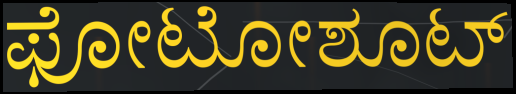
ಫೋಟೋಶೂಟ್